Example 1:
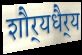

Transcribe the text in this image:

शौर्यधैर्य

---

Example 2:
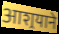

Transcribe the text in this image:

आश्रयाने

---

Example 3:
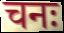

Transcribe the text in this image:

चनः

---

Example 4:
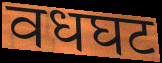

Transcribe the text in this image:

वधघट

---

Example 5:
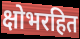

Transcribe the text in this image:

क्षोभरहित